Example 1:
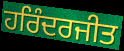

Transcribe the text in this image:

ਹਰਿੰਦਰਜੀਤ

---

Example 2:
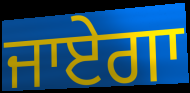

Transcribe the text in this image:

ਜਾਏਗਾ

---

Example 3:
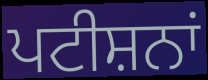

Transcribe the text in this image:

ਪਟੀਸ਼ਨਾਂ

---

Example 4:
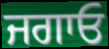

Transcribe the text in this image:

ਜਗਾਓ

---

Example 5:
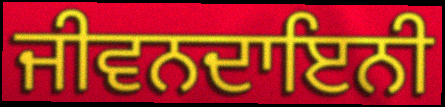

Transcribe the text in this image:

ਜੀਵਨਦਾਇਨੀ